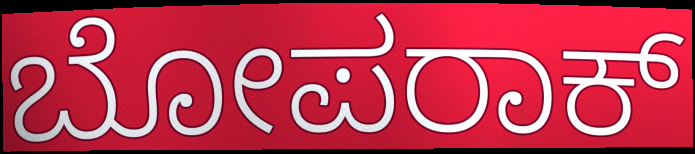
ಬೋಪರಾಕ್